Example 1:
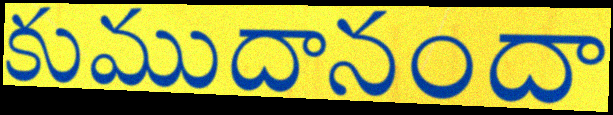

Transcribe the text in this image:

కుముదానందా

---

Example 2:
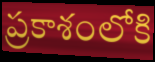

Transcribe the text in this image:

ప్రకాశంలోకి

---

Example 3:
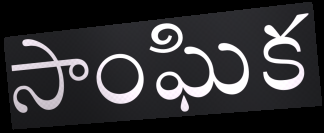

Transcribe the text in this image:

సాంఘిక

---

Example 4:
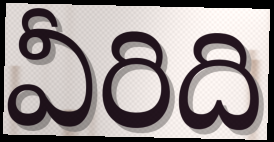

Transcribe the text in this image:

వీరిది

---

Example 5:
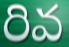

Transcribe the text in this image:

రివ